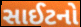
સાઈટનો